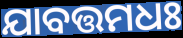
ଯାବତ୍ତମଧଃ